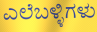
ಎಲೆಬಳ್ಳಿಗಳು